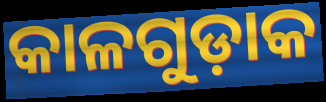
କାଳଗୁଡ଼ାକ